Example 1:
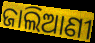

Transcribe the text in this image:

ଜାଲିଆଣୀ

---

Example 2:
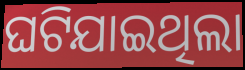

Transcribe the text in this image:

ଘଟିଯାଇଥିଲା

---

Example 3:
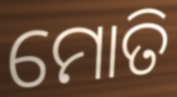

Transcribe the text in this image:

ମୋତି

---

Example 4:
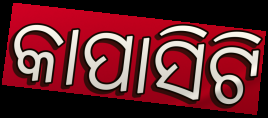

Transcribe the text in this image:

କାପାସିଟି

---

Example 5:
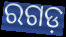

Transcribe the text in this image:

ରଗଡ଼